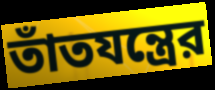
তাঁতযন্ত্রের